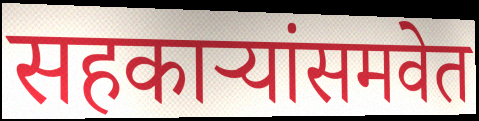
सहकाऱ्यांसमवेत